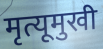
मृत्यूमुखी